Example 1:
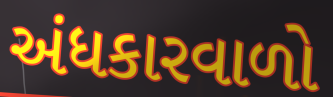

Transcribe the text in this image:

અંધકારવાળો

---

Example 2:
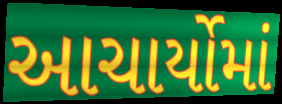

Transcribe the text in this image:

આચાર્યોમાં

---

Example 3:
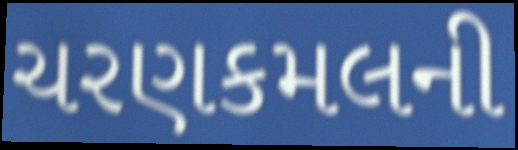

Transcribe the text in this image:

ચરણકમલની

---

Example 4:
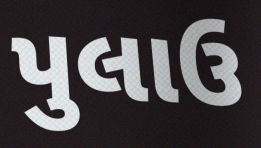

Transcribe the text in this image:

પુલાઉ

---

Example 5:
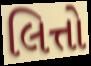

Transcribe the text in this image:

લિત્તો